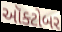
ઑક્ટોબર